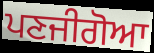
ਪਣਜੀਗੋਆ